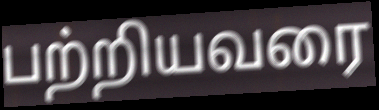
பற்றியவரை